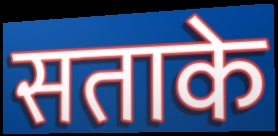
सताके